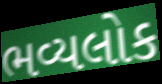
ભવ્યલોક